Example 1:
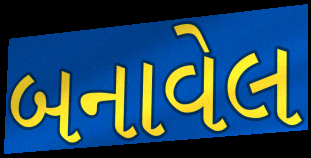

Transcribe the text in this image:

બનાવેલ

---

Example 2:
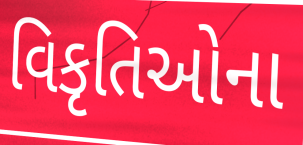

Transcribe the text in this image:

વિકૃતિઓના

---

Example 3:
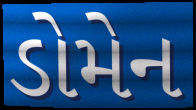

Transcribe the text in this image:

ડોમેન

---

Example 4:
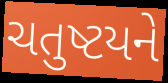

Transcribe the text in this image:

ચતુષ્ટયને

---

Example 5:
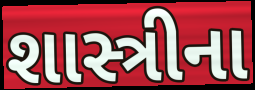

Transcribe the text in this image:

શાસ્ત્રીના